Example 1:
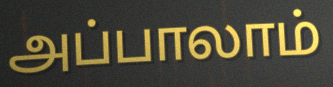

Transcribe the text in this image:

அப்பாலாம்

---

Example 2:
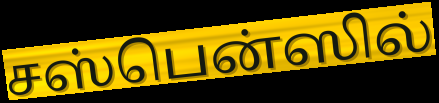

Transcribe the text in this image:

சஸ்பென்ஸில்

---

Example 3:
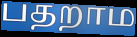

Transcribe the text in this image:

பதறாம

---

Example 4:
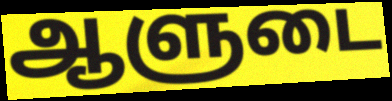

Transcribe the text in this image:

ஆளுடை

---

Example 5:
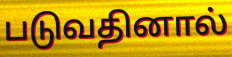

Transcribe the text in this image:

படுவதினால்